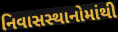
નિવાસસ્થાનોમાંથી